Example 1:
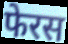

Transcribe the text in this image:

फेरस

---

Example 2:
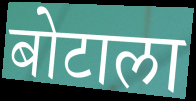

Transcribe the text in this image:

बोटाला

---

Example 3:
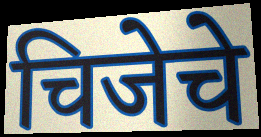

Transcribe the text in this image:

चिजेचे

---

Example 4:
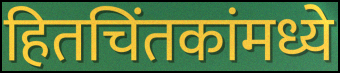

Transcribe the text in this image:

हितचिंतकांमध्ये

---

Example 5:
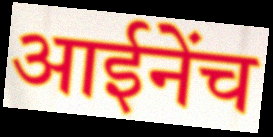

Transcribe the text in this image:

आईनेंच